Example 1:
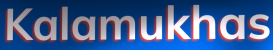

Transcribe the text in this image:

Kalamukhas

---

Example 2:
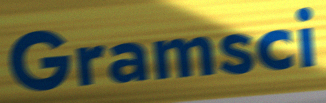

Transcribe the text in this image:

Gramsci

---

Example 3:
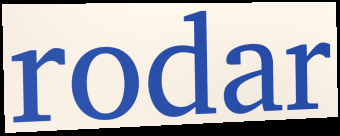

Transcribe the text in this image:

rodar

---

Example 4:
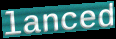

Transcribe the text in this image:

lanced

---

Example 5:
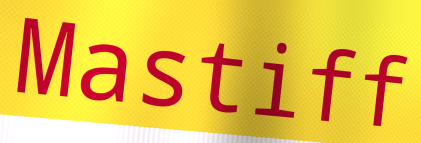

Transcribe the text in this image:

Mastiff